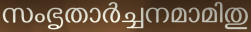
സംഭൃതാർച്ചനമാമിതു